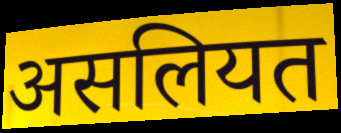
असलियत